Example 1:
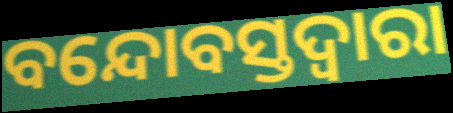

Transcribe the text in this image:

ବନ୍ଦୋବସ୍ତଦ୍ୱାରା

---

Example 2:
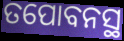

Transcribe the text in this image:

ତପୋବନସ୍ଥ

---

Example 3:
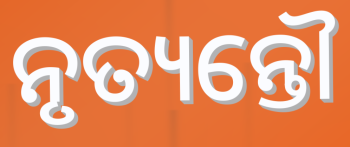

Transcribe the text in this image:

ନୃତ୍ୟନ୍ତୌ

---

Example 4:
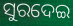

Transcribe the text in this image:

ସୁରଦେଇ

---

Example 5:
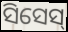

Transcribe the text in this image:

ସିସେସ୍